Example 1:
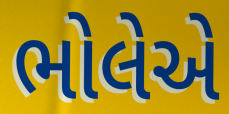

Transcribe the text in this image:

ભોલેએ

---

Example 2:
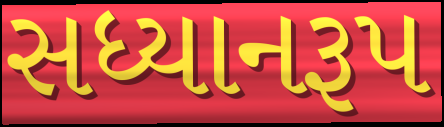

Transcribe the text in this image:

સધ્યાનરૂપ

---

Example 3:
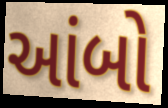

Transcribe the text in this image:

આંબો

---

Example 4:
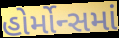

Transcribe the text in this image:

હોર્મોન્સમાં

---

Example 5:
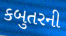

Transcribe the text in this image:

કબુતરની